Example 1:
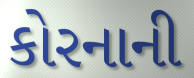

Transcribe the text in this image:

કોરનાની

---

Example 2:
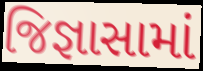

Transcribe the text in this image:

જિજ્ઞાસામાં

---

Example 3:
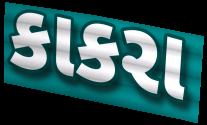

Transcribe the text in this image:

કાકરા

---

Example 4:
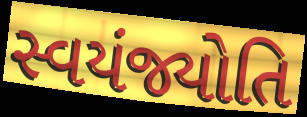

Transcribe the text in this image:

સ્વયંજ્યોતિ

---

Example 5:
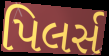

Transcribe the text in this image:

પિલર્સ